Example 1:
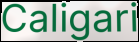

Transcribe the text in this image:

Caligari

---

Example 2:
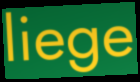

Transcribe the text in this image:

liege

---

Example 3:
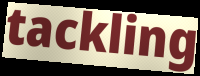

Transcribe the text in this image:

tackling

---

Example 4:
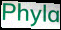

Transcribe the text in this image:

Phyla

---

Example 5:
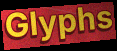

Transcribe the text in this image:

Glyphs